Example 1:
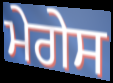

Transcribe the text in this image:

ਮੇਗੇਸ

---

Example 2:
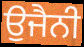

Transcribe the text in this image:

ਉਜੈਨੀ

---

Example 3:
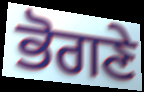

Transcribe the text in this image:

ਭੋਗਣੇ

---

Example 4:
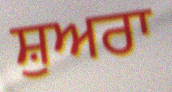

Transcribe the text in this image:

ਸ਼ੁਅਰਾ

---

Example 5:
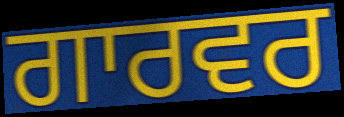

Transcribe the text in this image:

ਗਾਰਵਰ